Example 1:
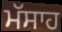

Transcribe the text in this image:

ਮੱਸਾਹ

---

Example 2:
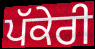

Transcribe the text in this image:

ਪੱਕੇਰੀ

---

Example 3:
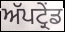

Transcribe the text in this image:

ਅੱਪਟ੍ਰੇਂਡ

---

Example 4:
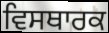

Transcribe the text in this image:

ਵਿਸਥਾਰਕ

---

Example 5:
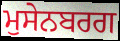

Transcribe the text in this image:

ਮੁਸੇਨਬਰਗ